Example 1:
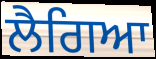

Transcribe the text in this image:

ਲੈਗਿਆ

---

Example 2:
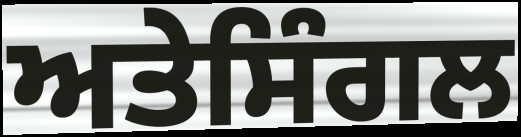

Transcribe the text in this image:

ਅਤੇਸਿੰਗਲ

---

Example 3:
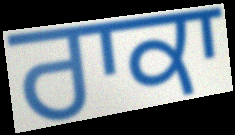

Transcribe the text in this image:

ਰਾਕਾ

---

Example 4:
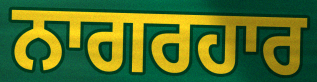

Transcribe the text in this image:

ਨਾਗਰਹਾਰ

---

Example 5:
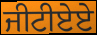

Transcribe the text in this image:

ਜੀਟੀਏਏ